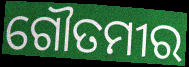
ଗୌତମୀର